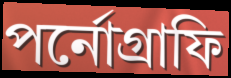
পর্নোগ্রাফি